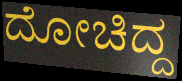
ದೋಚಿದ್ದ